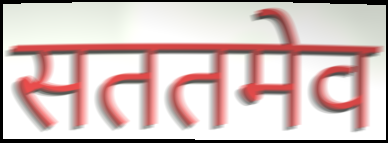
सततमेव